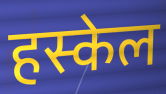
हस्केल